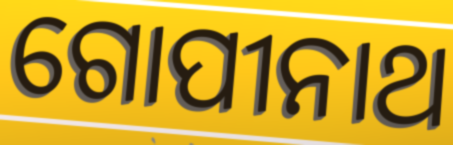
ଗୋପୀନାଥ